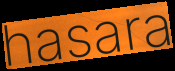
hasara